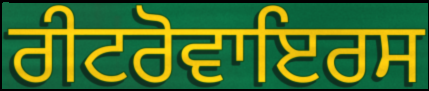
ਰੀਟਰੋਵਾਇਰਸ